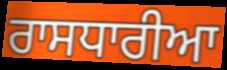
ਰਾਸਧਾਰੀਆ